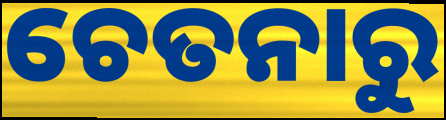
ଚେତନାରୁ